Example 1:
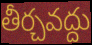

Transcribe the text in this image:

తీర్చవద్దు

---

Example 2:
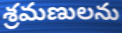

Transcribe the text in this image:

శ్రమణులను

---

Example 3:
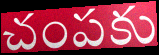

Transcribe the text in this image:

చంపకు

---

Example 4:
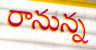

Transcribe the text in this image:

రానున్న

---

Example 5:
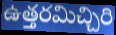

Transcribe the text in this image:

ఉత్తరమిచ్చిరి